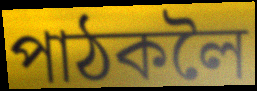
পাঠকলৈ